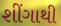
શીંગાથી